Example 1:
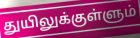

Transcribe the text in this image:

துயிலுக்குள்ளும்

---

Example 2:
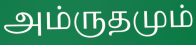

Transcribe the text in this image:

அம்ருதமும்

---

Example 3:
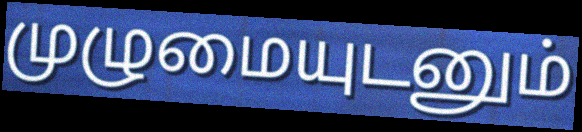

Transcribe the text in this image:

முழுமையுடனும்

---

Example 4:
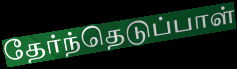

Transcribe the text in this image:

தேர்ந்தெடுப்பாள்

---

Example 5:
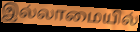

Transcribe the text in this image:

இல்லாமையில்